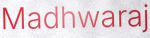
Madhwaraj